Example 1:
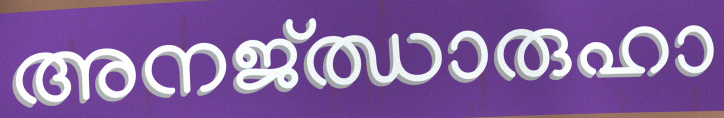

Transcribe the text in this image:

അനജ്ഝാരുഹാ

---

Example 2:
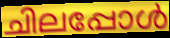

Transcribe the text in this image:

ചിലപ്പോൾ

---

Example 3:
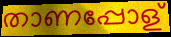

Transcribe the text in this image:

താണപ്പോള്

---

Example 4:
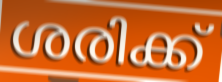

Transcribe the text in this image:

ശരിക്ക്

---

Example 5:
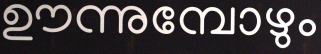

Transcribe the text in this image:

ഊന്നുമ്പോഴും